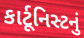
કાર્ટૂનિસ્ટનું